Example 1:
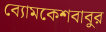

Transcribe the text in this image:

ব্যোমকেশবাবুর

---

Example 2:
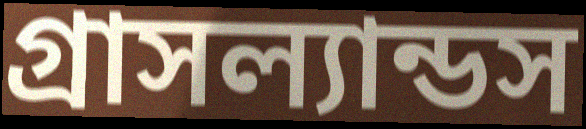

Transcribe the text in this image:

গ্রাসল্যান্ডস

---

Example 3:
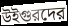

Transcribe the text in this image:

উইগুরদের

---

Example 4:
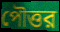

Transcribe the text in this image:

পৌত্তর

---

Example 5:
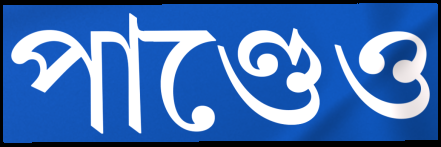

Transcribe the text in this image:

পাণ্ডেও